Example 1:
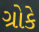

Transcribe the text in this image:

ગ્રોકે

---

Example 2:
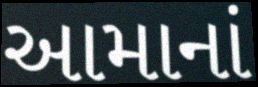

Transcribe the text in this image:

આમાનાં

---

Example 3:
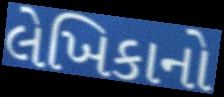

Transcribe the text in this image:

લેખિકાનો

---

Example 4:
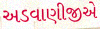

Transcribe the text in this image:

અડવાણીજીએ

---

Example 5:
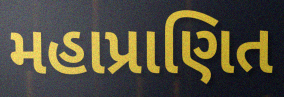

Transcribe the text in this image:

મહાપ્રાણિત